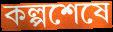
কল্পশেষে